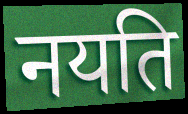
नयति